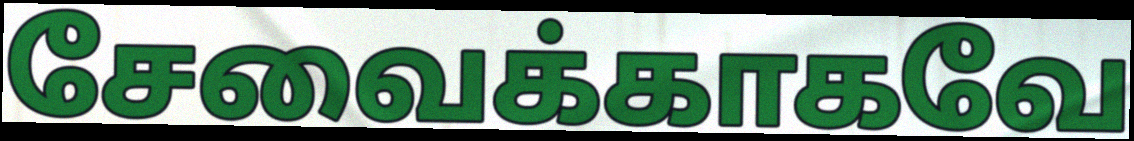
சேவைக்காகவே